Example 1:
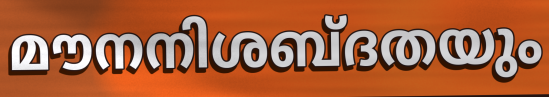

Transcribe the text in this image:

മൗനനിശബ്ദതയും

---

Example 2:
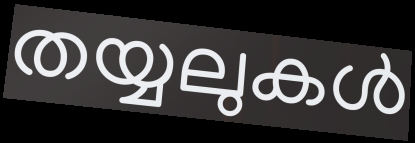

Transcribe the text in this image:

തയ്യലുകൾ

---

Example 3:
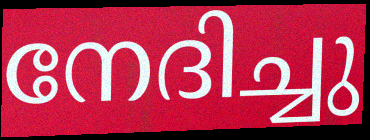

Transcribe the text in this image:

നേദിച്ചു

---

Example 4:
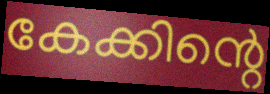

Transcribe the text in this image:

കേക്കിന്റെ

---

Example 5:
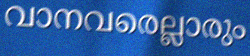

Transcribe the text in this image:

വാനവരെല്ലാരും